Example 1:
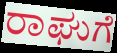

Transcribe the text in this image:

ರಾಘುಗೆ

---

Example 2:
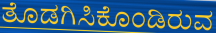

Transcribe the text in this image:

ತೊಡಗಿಸಿಕೊಂಡಿರುವ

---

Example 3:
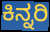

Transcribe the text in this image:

ಕಿನ್ನರಿ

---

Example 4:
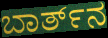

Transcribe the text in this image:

ಬಾರ್ತ್‌ನ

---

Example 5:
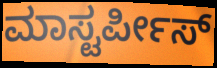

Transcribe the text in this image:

ಮಾಸ್ಟರ್ಪೀಸ್